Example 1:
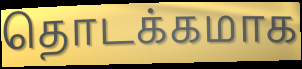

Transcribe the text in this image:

தொடக்கமாக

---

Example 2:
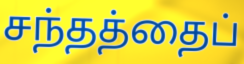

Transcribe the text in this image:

சந்தத்தைப்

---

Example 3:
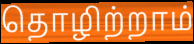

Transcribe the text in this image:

தொழிற்றாம்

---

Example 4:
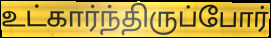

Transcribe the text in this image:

உட்கார்ந்திருப்போர்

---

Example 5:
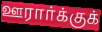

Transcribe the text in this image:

ஊரார்க்குக்